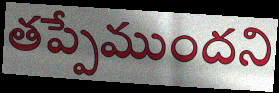
తప్పేముందని